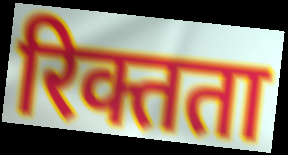
रिक्तता